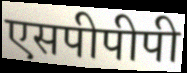
एसपीपीपी